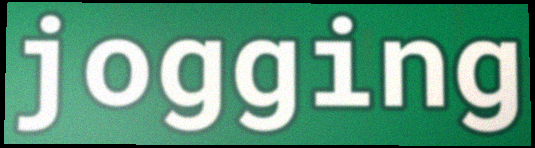
jogging